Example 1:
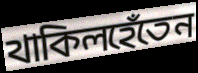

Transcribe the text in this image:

থাকিলহেঁতেন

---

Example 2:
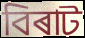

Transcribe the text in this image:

বিৰাট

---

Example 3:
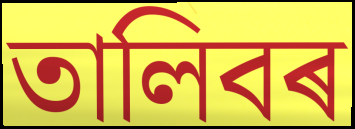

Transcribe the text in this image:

তালিবৰ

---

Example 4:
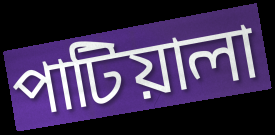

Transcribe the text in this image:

পাটিয়ালা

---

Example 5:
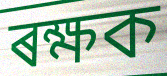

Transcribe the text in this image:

ৰক্ষক